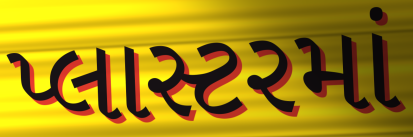
પ્લાસ્ટરમાં